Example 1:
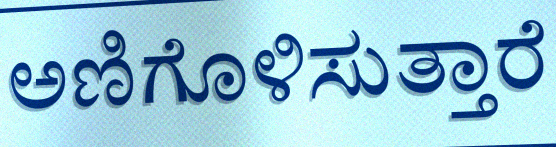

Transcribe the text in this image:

ಅಣಿಗೊಳಿಸುತ್ತಾರೆ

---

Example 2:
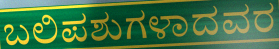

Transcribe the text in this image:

ಬಲಿಪಶುಗಳಾದವರ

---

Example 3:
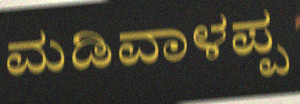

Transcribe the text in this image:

ಮಡಿವಾಳಪ್ಪ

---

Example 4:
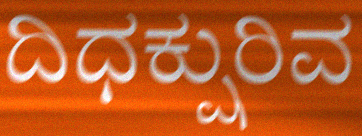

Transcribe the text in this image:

ದಿಧಕ್ಷುರಿವ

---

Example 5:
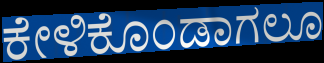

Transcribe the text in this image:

ಕೇಳಿಕೊಂಡಾಗಲೂ